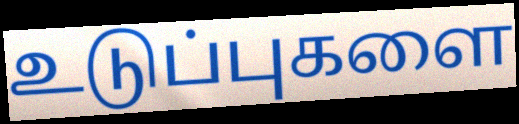
உடுப்புகளை